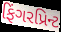
ફિંગરપ્રિન્ટ